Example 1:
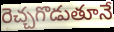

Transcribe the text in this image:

రెచ్చగొడుతూనే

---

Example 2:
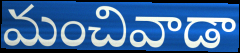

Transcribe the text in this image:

మంచివాడా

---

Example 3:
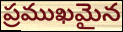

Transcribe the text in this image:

ప్రముఖమైన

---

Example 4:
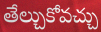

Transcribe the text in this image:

తేల్చుకోవచ్చు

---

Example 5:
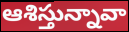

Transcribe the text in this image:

ఆశిస్తున్నావా